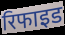
रिफाइड